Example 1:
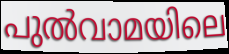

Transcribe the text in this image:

പുൽവാമയിലെ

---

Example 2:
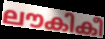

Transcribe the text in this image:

ലൗകികീ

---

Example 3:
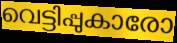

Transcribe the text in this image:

വെട്ടിപ്പുകാരോ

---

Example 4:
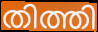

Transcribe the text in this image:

തിത്തി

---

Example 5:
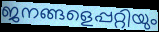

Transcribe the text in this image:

ജനങ്ങളെപ്പറ്റിയും